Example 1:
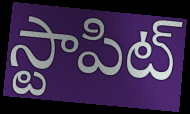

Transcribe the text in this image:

స్టాపిట్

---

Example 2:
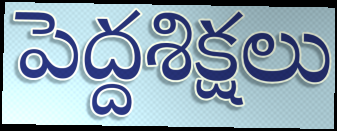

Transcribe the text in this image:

పెద్దశిక్షలు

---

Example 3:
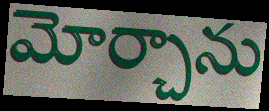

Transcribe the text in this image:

మోర్చాను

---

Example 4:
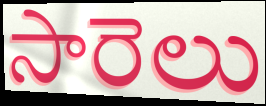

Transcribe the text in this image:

సారెలు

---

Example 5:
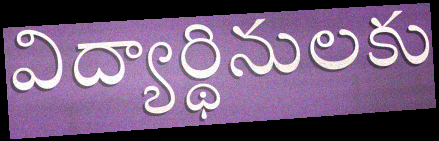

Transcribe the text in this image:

విద్యార్థినులకు